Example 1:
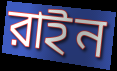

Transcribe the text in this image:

রাইন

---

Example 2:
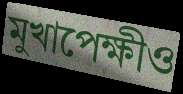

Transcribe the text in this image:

মুখাপেক্ষীও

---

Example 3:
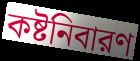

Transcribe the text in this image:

কষ্টনিবারণ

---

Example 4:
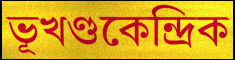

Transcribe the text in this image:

ভূখণ্ডকেন্দ্রিক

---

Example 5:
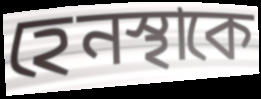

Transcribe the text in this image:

হেনস্থাকে